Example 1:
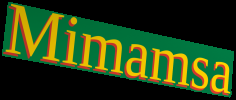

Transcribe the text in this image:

Mimamsa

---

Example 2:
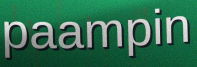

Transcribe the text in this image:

paampin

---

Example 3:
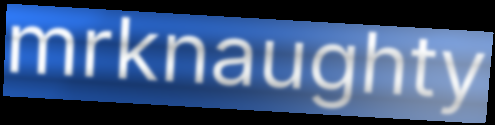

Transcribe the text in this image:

mrknaughty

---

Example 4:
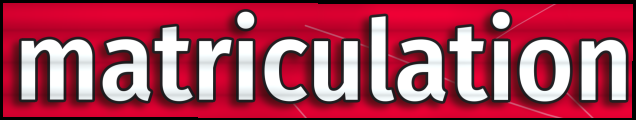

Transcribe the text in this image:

matriculation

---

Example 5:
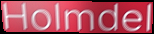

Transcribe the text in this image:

Holmdel